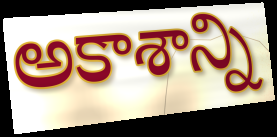
అకాశాన్ని